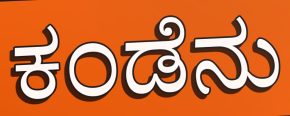
ಕಂಡೆನು